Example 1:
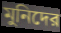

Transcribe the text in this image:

মুনিদের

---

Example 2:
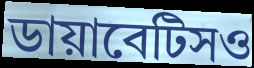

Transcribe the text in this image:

ডায়াবেটিসও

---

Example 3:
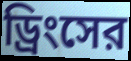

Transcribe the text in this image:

ড্রিংসের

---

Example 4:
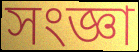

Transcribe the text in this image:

সংজ্ঞা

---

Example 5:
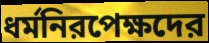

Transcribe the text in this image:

ধর্মনিরপেক্ষদের